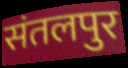
संतलपुर